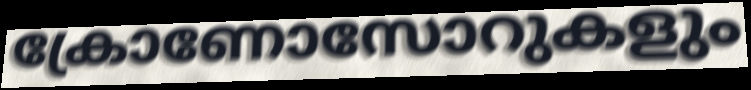
ക്രോണോസോറുകളും